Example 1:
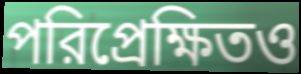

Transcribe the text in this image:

পরিপ্রেক্ষিতও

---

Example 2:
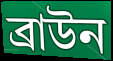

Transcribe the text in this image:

ব্রাউন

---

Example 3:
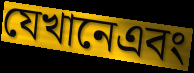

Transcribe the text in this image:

যেখানেএবং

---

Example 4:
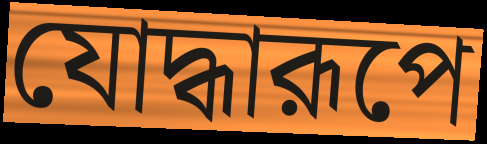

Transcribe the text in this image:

যোদ্ধারূপে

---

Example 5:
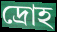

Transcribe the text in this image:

দ্রোহ